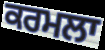
ਕਰਮਲਾ